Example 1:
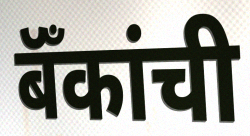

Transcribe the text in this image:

बॅँकांची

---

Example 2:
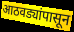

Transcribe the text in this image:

आठवड्यांपासून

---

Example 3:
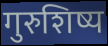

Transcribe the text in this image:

गुरुशिष्य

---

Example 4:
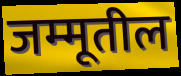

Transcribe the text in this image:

जम्मूतील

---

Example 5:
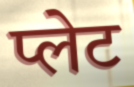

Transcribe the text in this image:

प्लेट